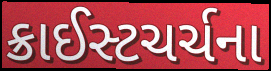
ક્રાઈસ્ટચર્ચના